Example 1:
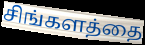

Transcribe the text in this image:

சிங்களத்தை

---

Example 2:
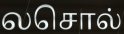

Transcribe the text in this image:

லசொல்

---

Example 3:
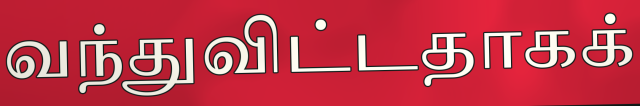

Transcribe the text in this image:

வந்துவிட்டதாகக்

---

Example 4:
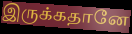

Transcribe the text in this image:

இருக்கதானே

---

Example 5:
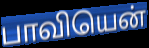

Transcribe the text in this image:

பாவியென்